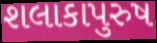
શલાકાપુરુષ